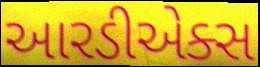
આરડીએક્સ